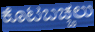
ಕೊಟಬಚ್ಚಲು